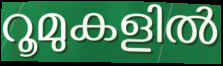
റൂമുകളിൽ